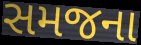
સમજના